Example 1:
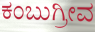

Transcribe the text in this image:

ಕಂಬುಗ್ರೀವ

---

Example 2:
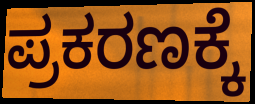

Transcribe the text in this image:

ಪ್ರಕರಣಕ್ಕೆ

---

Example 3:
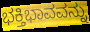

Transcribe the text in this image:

ಭಕ್ತಿಭಾವವನ್ನು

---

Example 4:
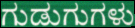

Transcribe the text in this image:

ಗುಡುಗುಗಳು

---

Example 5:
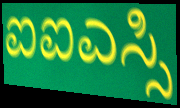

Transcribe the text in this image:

ಐಐಎಸ್ಸಿ